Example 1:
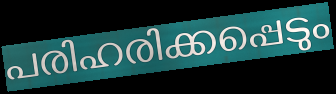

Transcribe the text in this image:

പരിഹരിക്കപ്പെടും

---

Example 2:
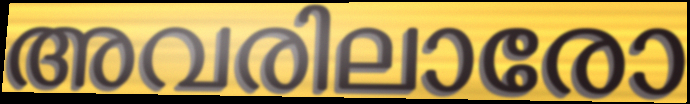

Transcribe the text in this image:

അവരിലാരോ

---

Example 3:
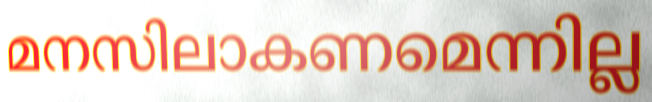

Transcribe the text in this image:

മനസിലാകണമെന്നില്ല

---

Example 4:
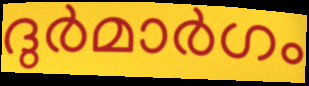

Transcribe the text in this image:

ദുർമാർഗം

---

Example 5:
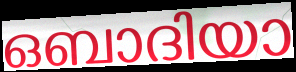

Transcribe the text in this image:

ഒബാദിയാ